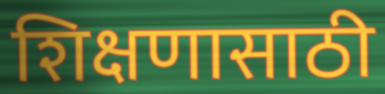
शिक्षणासाठी